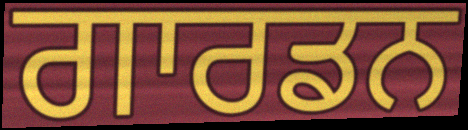
ਗਾਰਡਨ